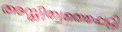
അസ്തിത്വത്തെപ്പറ്റി